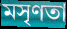
মসৃণতা